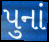
પુનાં